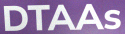
DTAAs